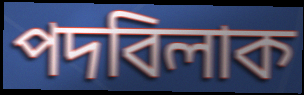
পদবিলাক